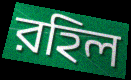
রহিল